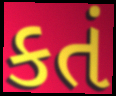
કતં